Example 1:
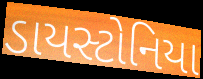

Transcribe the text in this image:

ડાયસ્ટોનિયા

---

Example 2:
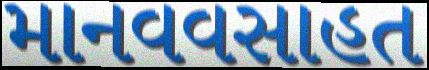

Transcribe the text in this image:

માનવવસાહત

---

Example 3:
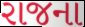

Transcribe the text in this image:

રાજના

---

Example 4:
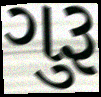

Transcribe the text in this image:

ગુરૂ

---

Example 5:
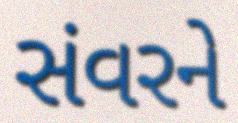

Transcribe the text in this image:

સંવરને